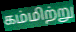
கம்மிற்று